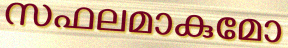
സഫലമാകുമോ